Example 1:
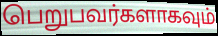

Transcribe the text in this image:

பெறுபவர்களாகவும்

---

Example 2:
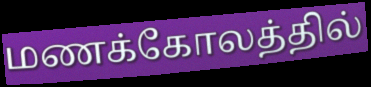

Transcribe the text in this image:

மணக்கோலத்தில்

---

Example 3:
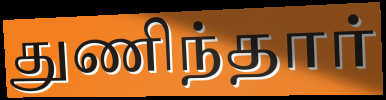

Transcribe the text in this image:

துணிந்தார்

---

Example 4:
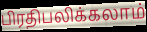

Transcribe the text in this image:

பிரதிபலிக்கலாம்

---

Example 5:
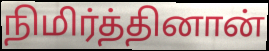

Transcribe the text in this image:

நிமிர்த்தினான்